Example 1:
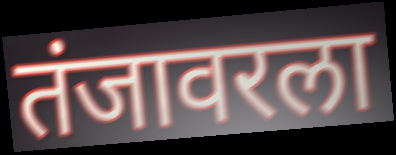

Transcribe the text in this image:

तंजावरला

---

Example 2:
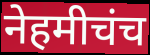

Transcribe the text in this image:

नेहमीचंच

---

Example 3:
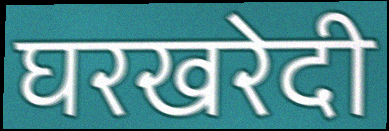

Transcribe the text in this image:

घरखरेदी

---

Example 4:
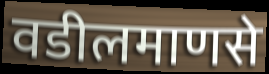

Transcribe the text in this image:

वडीलमाणसे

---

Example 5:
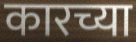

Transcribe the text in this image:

कारच्या